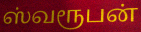
ஸ்வரூபன்